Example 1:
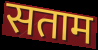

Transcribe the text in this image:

सताम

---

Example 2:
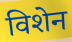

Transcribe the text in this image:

विशेन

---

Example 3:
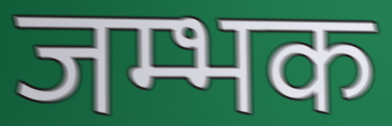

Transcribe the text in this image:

जम्भक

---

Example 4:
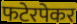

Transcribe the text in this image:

फटेरपेकर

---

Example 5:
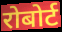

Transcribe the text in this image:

रोबोर्ट